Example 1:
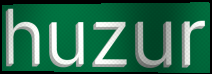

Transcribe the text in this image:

huzur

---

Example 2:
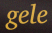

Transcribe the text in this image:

gele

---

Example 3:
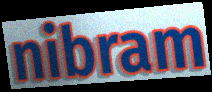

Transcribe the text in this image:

nibram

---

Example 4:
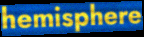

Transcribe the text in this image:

hemisphere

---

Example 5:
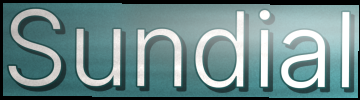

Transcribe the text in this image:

Sundial